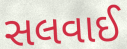
સલવાઈ